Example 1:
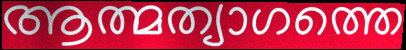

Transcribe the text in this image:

ആത്മത്യാഗത്തെ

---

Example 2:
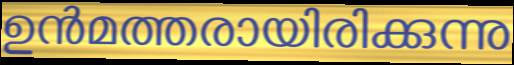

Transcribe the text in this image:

ഉൻമത്തരായിരിക്കുന്നു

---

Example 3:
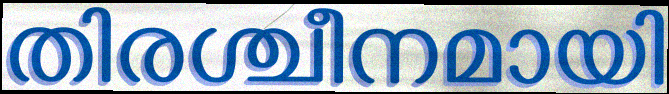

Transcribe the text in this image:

തിരശ്ചീനമായി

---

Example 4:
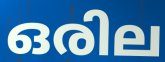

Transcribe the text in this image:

ഒരില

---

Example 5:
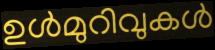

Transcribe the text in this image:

ഉൾമുറിവുകൾ